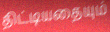
திட்டியதையும்